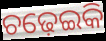
ଚଢ଼େଇକି